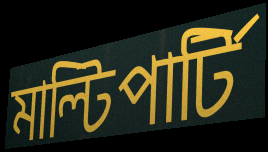
মাল্টিপার্টি